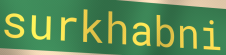
surkhabni